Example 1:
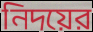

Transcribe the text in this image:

নিদয়ের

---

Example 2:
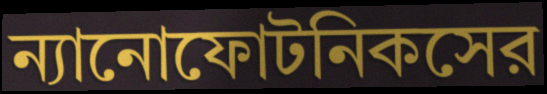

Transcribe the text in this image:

ন্যানোফোটনিকসের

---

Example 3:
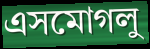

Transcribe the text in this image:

এসমোগলু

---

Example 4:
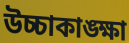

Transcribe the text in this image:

উচ্চাকাঙ্ক্ষা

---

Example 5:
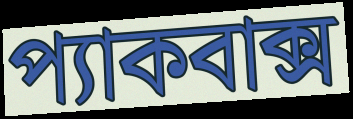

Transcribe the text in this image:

প্যাকবাক্স